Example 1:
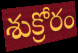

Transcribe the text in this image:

శుక్రోరం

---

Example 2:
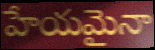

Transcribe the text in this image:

హేయమైనా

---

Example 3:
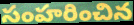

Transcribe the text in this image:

సంహరించిన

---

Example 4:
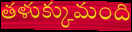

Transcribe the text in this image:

తళుక్కుమంది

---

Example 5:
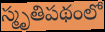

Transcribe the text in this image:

స్మృతిపథంలో